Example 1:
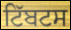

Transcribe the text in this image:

ਟਿੱਬਟਸ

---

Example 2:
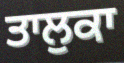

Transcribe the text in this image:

ਤਾਲੁਕਾ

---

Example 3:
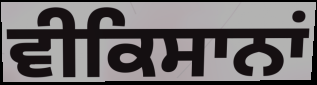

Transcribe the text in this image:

ਵੀਕਿਸਾਨਾਂ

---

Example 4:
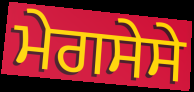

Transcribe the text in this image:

ਮੇਗਸੇਸੇ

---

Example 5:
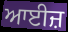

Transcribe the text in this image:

ਆਈਜ਼